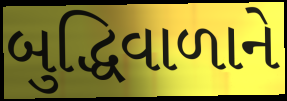
બુદ્ધિવાળાને